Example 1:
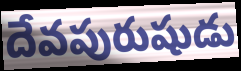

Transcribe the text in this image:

దేవపురుషుడు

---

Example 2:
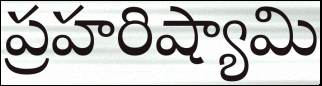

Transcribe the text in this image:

ప్రహరిష్యామి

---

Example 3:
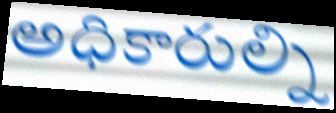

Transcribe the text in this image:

అధికారుల్ని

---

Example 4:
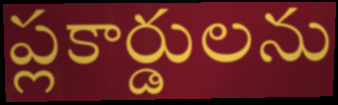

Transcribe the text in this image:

ప్లకార్డులను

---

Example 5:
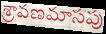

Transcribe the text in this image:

శ్రావణమాసపు